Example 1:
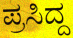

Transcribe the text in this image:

ಪ್ರಸಿದ್ದ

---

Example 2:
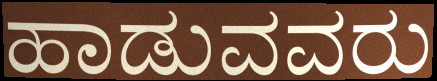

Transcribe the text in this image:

ಹಾಡುವವರು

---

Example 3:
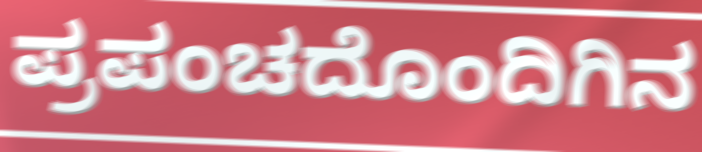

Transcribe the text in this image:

ಪ್ರಪಂಚದೊಂದಿಗಿನ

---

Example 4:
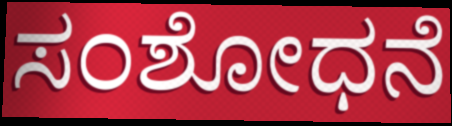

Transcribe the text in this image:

ಸಂಶೋಧನೆ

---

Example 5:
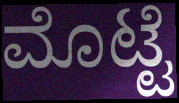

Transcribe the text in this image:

ಮೊಟ್ಟೆ